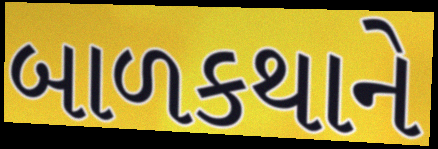
બાળકથાને